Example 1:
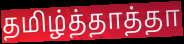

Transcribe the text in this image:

தமிழ்த்தாத்தா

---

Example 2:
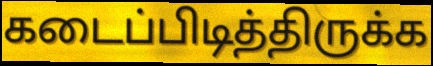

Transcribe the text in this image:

கடைப்பிடித்திருக்க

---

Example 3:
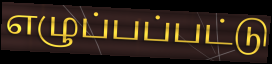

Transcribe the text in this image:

எழுப்பப்பட்டு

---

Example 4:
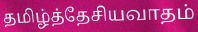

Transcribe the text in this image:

தமிழ்த்தேசியவாதம்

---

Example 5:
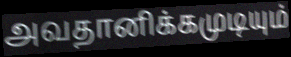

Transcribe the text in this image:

அவதானிக்கமுடியும்